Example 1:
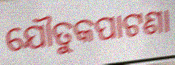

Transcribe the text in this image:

ଯୌତୁକପାଟଣା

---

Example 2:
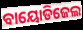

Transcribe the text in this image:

ବାୟୋଡିଜେଲ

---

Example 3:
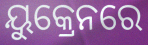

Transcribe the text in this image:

ୟୁକ୍ରେନରେ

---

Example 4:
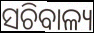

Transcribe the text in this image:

ସଚିବାଳ୍ୟ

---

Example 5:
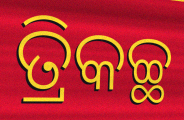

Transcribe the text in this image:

ତ୍ରିକଚ୍ଛ